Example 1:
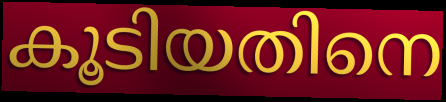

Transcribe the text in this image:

കൂടിയതിനെ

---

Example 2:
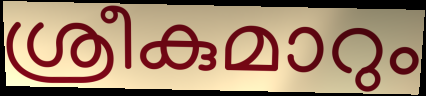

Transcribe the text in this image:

ശ്രീകുമാറും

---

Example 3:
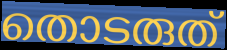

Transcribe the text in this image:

തൊടരുത്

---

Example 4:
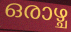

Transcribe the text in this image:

ഒരാഴ്ച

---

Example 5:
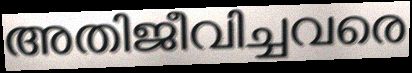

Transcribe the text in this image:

അതിജീവിച്ചവരെ